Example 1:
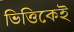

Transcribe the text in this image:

ভিত্তিকেই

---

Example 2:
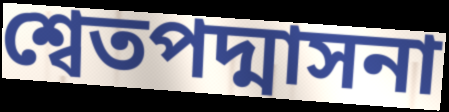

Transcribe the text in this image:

শ্বেতপদ্মাসনা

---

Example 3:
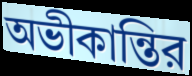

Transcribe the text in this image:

অভীকান্তির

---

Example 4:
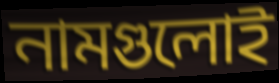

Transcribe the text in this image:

নামগুলোই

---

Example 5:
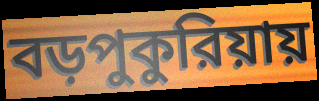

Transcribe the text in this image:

বড়পুকুরিয়ায়